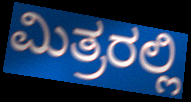
ಮಿತ್ರರಲ್ಲಿ